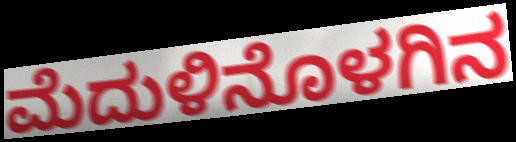
ಮೆದುಳಿನೊಳಗಿನ